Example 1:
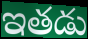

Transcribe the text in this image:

ఇతడు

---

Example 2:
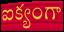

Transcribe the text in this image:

ఐక్యంగా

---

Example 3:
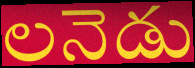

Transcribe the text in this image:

లనెడు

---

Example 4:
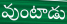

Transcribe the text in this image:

వుంటాడు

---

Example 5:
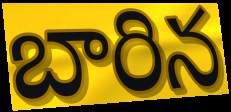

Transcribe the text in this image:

బారిన